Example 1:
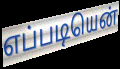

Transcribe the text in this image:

எப்படியென்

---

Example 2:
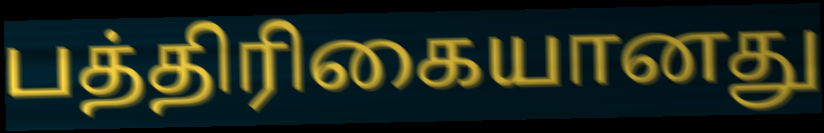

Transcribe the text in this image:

பத்திரிகையானது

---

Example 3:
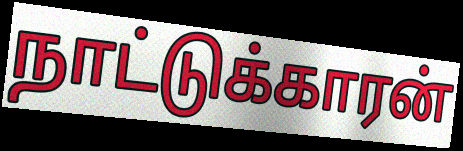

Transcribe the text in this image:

நாட்டுக்காரன்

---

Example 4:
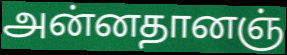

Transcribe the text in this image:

அன்னதானஞ்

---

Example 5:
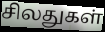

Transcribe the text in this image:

சிலதுகள்